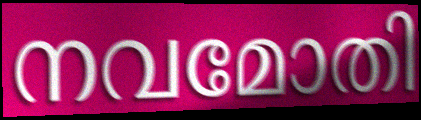
നവമോതി